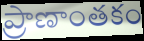
ప్రాణాంతకం